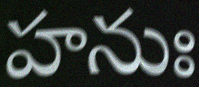
హనుః